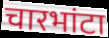
चारभांटा